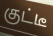
குட்டீ